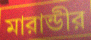
মারান্ডীর